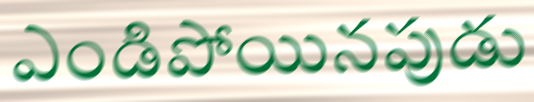
ఎండిపోయినపుడు